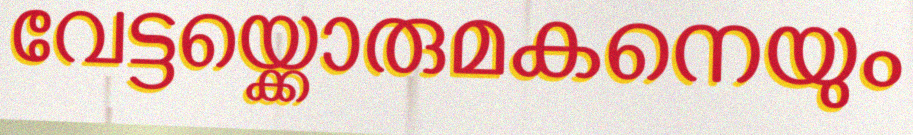
വേട്ടയ്ക്കൊരുമകനെയും